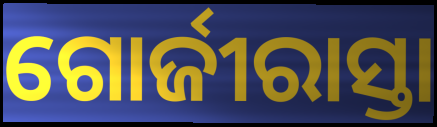
ଗୋର୍ଜୀରାସ୍ତା